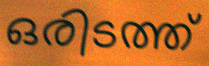
ഒരിടത്ത്